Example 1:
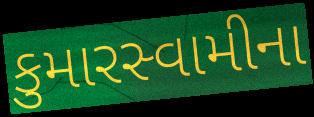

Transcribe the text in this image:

કુમારસ્વામીના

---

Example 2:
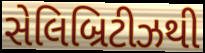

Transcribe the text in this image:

સેલિબ્રિટીઝથી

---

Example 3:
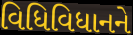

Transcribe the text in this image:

વિધિવિધાનને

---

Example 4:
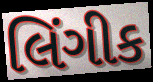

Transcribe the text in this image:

લિંગીક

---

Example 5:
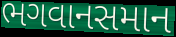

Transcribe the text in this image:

ભગવાનસમાન